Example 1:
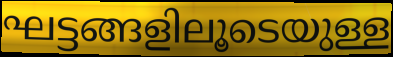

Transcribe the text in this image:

ഘട്ടങ്ങളിലൂടെയുള്ള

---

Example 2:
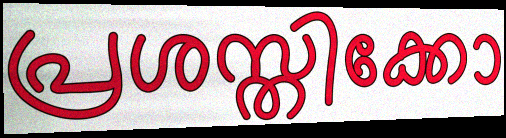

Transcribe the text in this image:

പ്രശസ്തിക്കോ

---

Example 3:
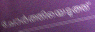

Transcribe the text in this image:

ചോർത്തിയെടുത്ത്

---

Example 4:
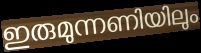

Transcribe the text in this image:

ഇരുമുന്നണിയിലും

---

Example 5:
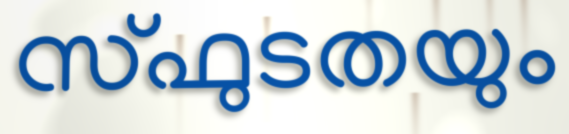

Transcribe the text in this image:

സ്ഫുടതയും